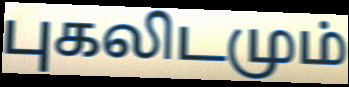
புகலிடமும்